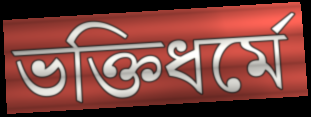
ভক্তিধর্মে